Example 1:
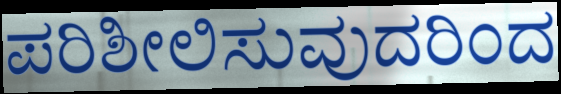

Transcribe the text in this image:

ಪರಿಶೀಲಿಸುವುದರಿಂದ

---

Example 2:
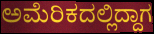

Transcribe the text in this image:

ಅಮೆರಿಕದಲ್ಲಿದ್ದಾಗ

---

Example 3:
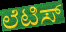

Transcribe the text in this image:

ಲೆಟಿಸ್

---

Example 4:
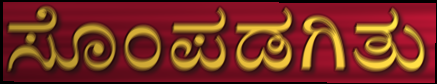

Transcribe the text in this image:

ಸೊಂಪಡಗಿತು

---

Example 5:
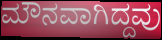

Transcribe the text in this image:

ಮೌನವಾಗಿದ್ದವು